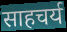
साहचर्य